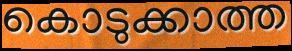
കൊടുക്കാത്ത